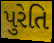
પુરેતિ